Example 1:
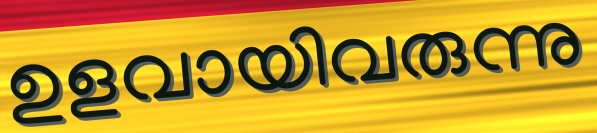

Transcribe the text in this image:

ഉളവായിവരുന്നു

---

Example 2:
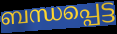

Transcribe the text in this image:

ബന്ധപ്പെട്ട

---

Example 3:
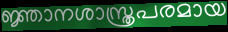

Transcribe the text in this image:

ജ്ഞാനശാസ്ത്രപരമായ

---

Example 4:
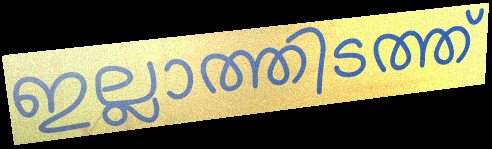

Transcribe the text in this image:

ഇല്ലാത്തിടത്ത്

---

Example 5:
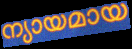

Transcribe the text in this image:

ന്യായമായ